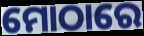
ମୋଠାରେ